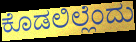
ಕೊಡಲಿಲ್ಲೆಂದು